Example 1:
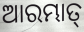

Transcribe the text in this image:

ଆରମ୍ଭାତ୍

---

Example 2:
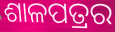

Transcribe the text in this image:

ଶାଳପତ୍ରର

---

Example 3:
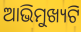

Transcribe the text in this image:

ଆଭିମୁଖ୍ୟଟି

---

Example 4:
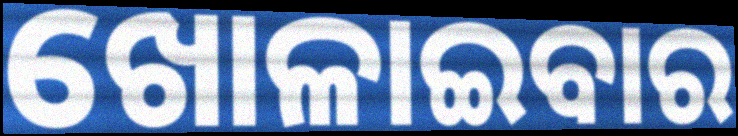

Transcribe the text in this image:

ଖୋଳାଇବାର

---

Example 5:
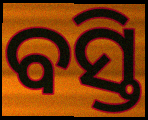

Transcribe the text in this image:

ବସ୍ତି